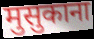
मुसुकाना